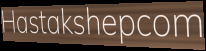
Hastakshepcom